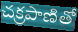
చక్రపాణితో